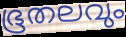
ഭൂതലവും